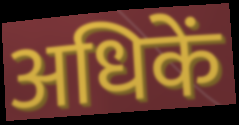
अधिकें